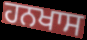
ਹਨਖਾਸ